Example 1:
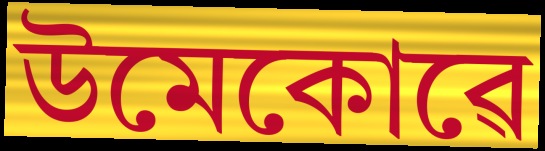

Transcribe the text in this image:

উমেকোৱে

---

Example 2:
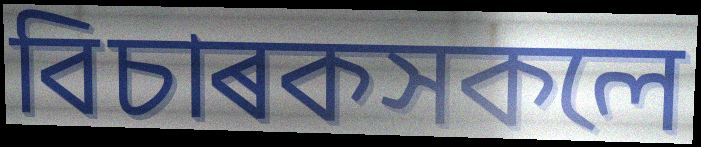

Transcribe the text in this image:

বিচাৰকসকলে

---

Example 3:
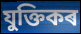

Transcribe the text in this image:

যুক্তিকৰ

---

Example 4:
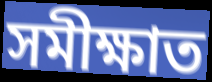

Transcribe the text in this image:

সমীক্ষাত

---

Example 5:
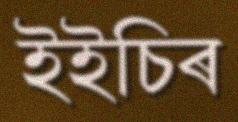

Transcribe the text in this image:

ইইচিৰ